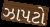
ઝાપટો